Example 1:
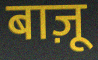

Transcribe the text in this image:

बाज़ू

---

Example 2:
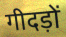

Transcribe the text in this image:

गीदड़ों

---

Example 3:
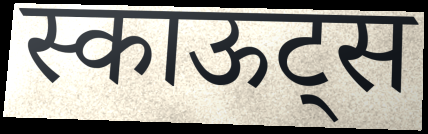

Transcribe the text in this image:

स्काऊट्स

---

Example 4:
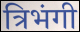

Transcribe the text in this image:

त्रिभंगी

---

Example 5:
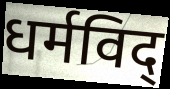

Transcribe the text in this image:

धर्मविद्